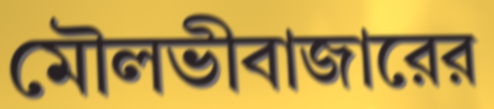
মৌলভীবাজারের